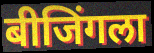
बीजिंगला